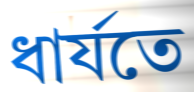
ধার্যতে